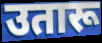
उतारू